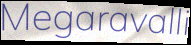
Megaravalli